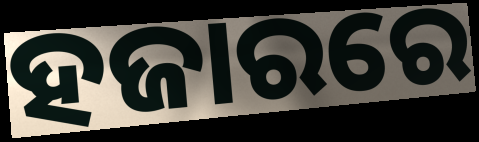
ହଜାରରେ